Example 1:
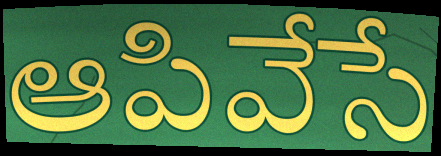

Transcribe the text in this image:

ఆపివేసే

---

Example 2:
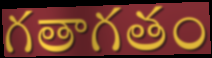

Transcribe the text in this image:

గతాగతం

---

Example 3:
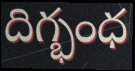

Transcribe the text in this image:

దిగ్భంధ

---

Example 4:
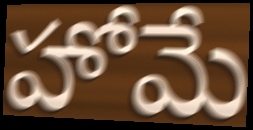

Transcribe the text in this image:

హోమే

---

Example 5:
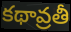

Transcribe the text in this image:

కథావ్రతీ